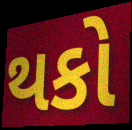
થકો